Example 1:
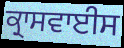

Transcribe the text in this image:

ਕ੍ਰਾਸਵਾਈਸ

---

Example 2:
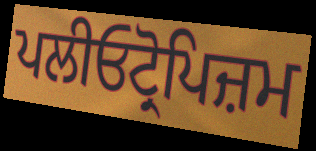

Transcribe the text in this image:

ਪਲੀਓਟ੍ਰੋਪਿਜ਼ਮ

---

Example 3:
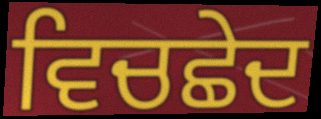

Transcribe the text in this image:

ਵਿਚਛੇਦ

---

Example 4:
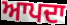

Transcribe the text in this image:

ਆਪਦਾ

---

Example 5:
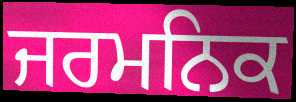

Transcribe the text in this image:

ਜਰਮਨਿਕ